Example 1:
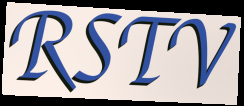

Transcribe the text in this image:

RSTV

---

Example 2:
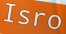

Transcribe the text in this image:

Isro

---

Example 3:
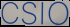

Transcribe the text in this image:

CSIO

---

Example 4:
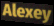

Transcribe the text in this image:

Alexey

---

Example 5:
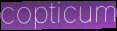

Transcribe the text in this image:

copticum